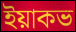
ইয়াকভ